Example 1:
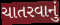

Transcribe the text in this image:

ચાતરવાનું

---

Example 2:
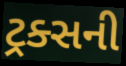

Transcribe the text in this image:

ટ્રક્સની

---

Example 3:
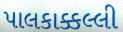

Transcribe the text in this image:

પાલકાક્કલ્લી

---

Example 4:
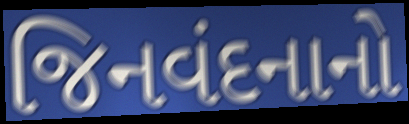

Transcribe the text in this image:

જિનવંદનાનો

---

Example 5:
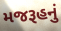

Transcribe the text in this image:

મજરૂહનું